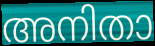
അനിതാ